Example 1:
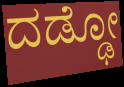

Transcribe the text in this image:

ದಡ್ಢೋ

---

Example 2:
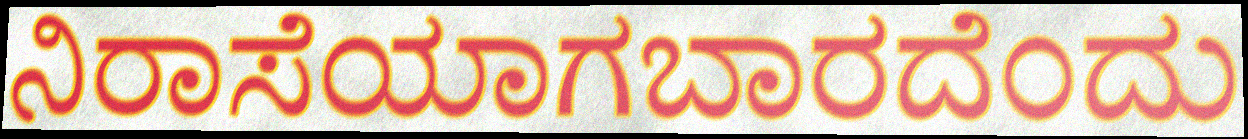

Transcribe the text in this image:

ನಿರಾಸೆಯಾಗಬಾರದೆಂದು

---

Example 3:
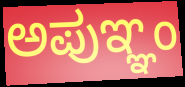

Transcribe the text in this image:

ಅಪುಞ್ಞಂ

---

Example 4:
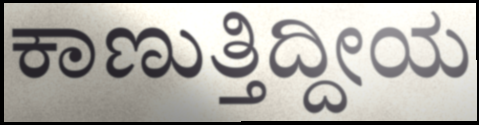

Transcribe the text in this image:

ಕಾಣುತ್ತಿದ್ದೀಯ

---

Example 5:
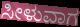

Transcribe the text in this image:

ಸೀಳುವಾಗ